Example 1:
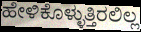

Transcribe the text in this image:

ಹೇಳಿಕೊಳ್ಳುತ್ತಿರಲಿಲ್ಲ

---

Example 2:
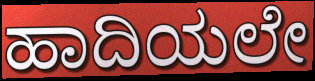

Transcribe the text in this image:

ಹಾದಿಯಲೇ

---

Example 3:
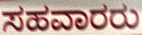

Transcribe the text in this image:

ಸಹವಾರರು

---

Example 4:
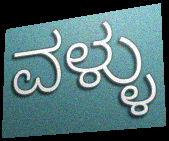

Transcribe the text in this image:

ವಳ್ಳು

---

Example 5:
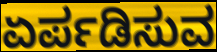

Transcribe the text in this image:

ಏರ್ಪಡಿಸುವ